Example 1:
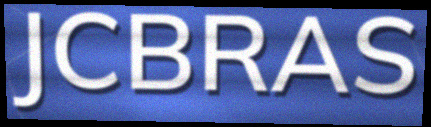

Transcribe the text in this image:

JCBRAS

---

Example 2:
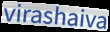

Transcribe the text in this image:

virashaiva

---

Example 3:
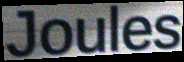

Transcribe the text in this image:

Joules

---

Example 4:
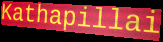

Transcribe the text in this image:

Kathapillai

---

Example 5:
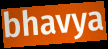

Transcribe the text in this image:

bhavya